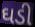
ઘડી